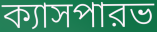
ক্যাসপারভ